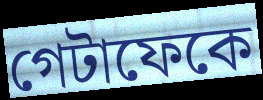
গেটাফেকে